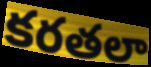
కరతలా